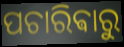
ପଚାରିଵାରୁ